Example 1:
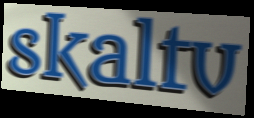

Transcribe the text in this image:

skaltu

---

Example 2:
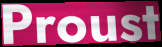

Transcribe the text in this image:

Proust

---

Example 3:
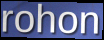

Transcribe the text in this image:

rohon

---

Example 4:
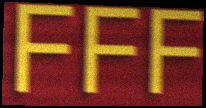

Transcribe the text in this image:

FFF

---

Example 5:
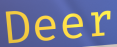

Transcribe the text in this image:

Deer